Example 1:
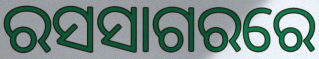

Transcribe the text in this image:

ରସସାଗରରେ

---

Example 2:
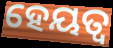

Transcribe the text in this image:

ହେୟତ୍ୱ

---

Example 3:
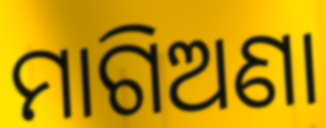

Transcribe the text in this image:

ମାଗିଅଣା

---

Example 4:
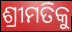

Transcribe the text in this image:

ଶ୍ରୀମତିକୁ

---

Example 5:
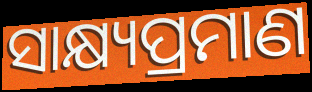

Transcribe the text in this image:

ସାକ୍ଷ୍ୟପ୍ରମାଣ